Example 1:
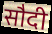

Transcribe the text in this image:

सौदी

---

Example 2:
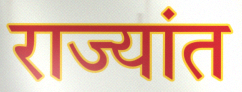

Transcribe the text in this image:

राज्यांत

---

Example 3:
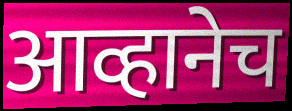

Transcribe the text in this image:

आव्हानेच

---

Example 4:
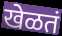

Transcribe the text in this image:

खेळतं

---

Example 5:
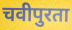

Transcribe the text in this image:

चवीपुरता